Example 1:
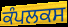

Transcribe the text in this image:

ਕੰਪਲਕਸ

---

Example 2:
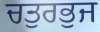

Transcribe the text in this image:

ਚਤੁਰਭੁਜ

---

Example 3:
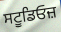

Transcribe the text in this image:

ਸਟੂਡਿਓਜ਼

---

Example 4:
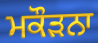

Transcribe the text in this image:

ਮਕੌੜਨਾ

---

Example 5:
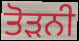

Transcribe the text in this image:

ਤੋੜਨੀ